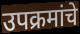
उपक्रमांचे